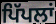
ਪਿੱਪਲਾਂ